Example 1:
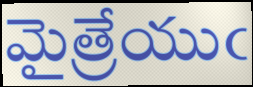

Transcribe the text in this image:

మైత్రేయుఁ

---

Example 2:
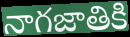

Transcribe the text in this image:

నాగజాతికి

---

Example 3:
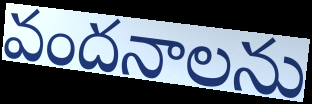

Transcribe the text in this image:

వందనాలను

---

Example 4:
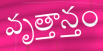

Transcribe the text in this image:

వృత్తాన్తం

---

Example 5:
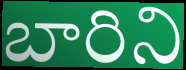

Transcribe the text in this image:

బారిని